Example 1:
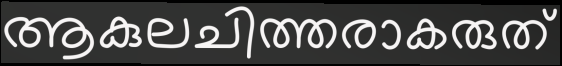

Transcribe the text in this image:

ആകുലചിത്തരാകരുത്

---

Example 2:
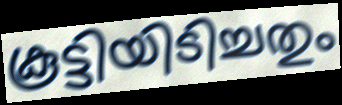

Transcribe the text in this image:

കൂട്ടിയിടിച്ചതും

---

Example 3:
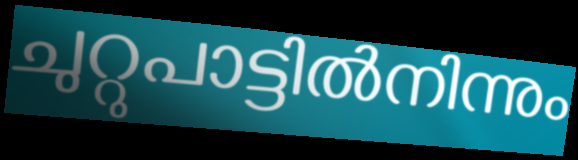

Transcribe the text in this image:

ചുറ്റുപാട്ടിൽനിന്നും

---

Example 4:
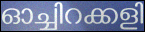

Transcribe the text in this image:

ഓച്ചിറക്കളി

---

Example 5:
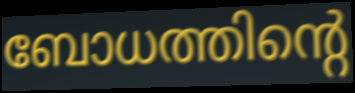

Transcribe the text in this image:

ബോധത്തിന്റെ